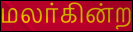
மலர்கின்ற